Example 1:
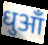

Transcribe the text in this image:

धुआँ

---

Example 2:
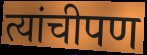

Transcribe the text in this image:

त्यांचीपण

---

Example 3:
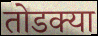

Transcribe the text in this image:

तोडक्या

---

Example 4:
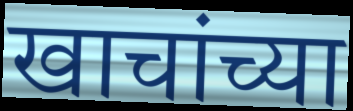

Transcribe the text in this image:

खाचांच्या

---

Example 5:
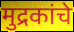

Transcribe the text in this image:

मुद्रकांचे